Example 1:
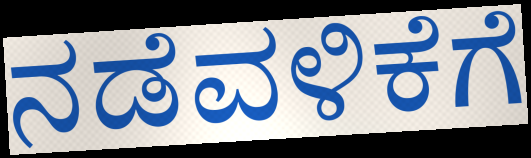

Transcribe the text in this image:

ನಡೆವಳಿಕೆಗೆ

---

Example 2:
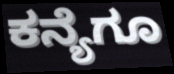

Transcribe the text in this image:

ಕನ್ಯೆಗೂ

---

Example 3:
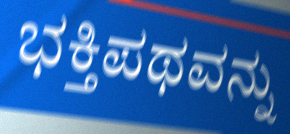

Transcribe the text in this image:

ಭಕ್ತಿಪಥವನ್ನು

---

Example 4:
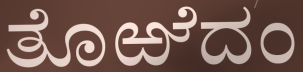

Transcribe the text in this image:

ತೊಱೆದಂ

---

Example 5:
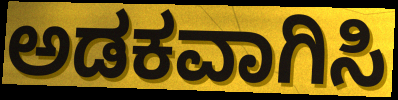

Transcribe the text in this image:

ಅಡಕವಾಗಿಸಿ